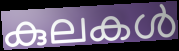
കുലകൾ